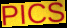
PICS